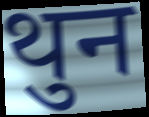
थुन